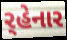
ર્‌હેનાર